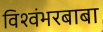
विश्वंभरबाबा